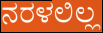
ನರಳಲಿಲ್ಲ